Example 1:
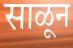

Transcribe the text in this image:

साळून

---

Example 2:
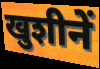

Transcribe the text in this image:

खुशीनें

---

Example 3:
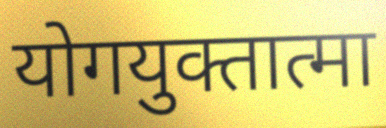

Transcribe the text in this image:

योगयुक्तात्मा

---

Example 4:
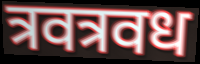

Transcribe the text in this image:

त्रवत्रवध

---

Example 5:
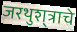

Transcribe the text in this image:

जरथुश्त्राचे